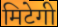
मिटेगी